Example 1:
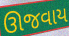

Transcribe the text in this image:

ઊજવાય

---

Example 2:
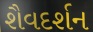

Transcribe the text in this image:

શૈવદર્શન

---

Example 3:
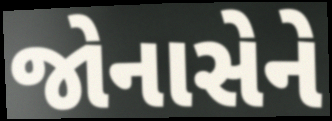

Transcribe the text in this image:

જોનાસેને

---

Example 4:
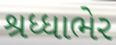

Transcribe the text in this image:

શ્રધ્ધાભેર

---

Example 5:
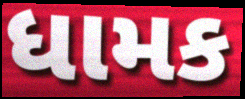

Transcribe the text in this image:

ધામક